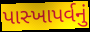
પાસ્ખાપર્વનું